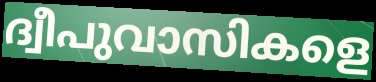
ദ്വീപുവാസികളെ